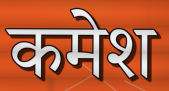
कमेश